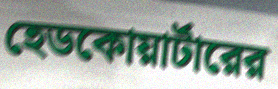
হেডকোয়ার্টারের